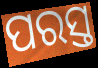
ପରସ୍ତ